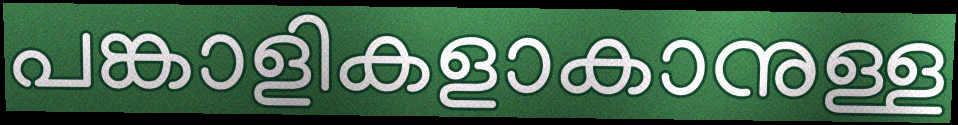
പങ്കാളികളാകാനുള്ള